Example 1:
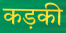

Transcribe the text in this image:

कड़की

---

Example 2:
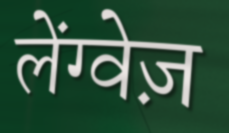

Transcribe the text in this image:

लेंग्वेज़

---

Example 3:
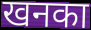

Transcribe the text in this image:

खनका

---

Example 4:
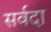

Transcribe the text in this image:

सर्वदा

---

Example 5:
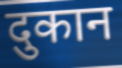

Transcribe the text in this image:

दुकान